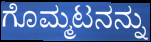
ಗೊಮ್ಮಟನನ್ನು